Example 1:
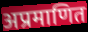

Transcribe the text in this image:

अप्रमाणित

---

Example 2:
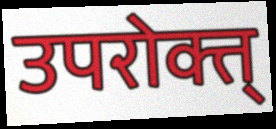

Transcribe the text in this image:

उपरोक्त्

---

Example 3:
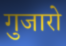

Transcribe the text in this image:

गुजारो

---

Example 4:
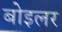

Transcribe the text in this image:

बोइलर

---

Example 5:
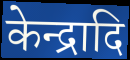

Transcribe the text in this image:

केन्द्रादि